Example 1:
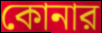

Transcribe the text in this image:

কোনার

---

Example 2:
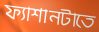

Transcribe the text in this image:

ফ্যাশানটাতে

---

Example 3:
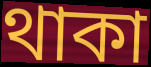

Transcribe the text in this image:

থাকা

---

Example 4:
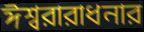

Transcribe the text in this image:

ঈশ্বরারাধনার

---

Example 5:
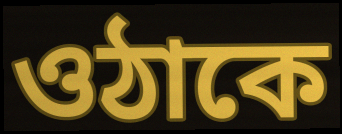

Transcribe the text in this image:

ওঠাকে